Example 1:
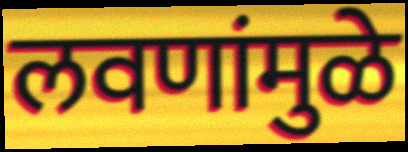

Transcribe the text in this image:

लवणांमुळे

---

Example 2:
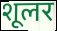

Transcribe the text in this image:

शूलर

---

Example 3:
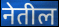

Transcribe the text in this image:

नेतील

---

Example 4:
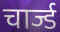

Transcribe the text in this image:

चार्ज्ड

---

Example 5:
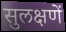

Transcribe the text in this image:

सुलक्षणें